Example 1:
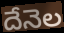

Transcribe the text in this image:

దేనెల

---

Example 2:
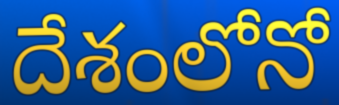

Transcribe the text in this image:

దేశంలోనో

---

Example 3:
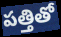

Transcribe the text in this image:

పత్తితో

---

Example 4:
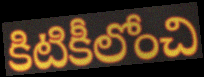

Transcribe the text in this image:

కిటికీలోంచి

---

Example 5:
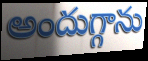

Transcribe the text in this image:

అందుగ్గాను